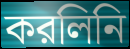
করলিনি